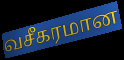
வசீகரமான